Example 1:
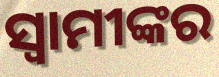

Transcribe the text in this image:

ସ୍ୱାମୀଙ୍କର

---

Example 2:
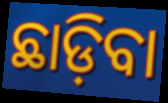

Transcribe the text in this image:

ଛାଡ଼ିବା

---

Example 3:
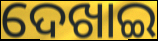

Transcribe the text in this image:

ଦେଖାଇ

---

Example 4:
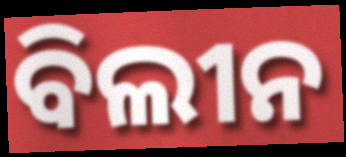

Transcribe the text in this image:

ବିଲୀନ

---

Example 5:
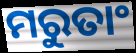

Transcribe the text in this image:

ମରୁତାଂ